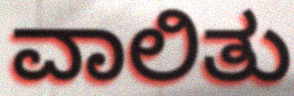
ವಾಲಿತು